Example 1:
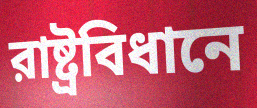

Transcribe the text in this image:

রাষ্ট্রবিধানে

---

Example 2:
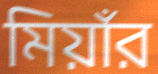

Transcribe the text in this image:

মিয়াঁর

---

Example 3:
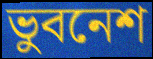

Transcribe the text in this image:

ভুবনেশ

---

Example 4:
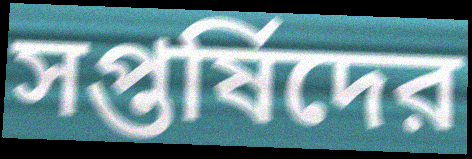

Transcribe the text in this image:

সপ্তর্ষিদের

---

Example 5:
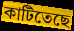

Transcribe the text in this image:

কাটিতেছে